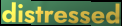
distressed